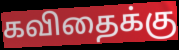
கவிதைக்கு